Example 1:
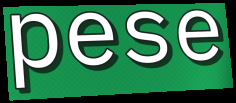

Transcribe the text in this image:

pese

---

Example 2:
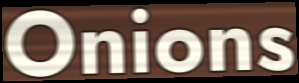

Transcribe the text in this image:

Onions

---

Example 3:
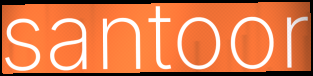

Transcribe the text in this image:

santoor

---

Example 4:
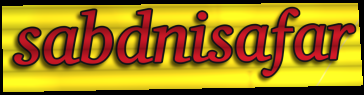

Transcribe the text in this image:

sabdnisafar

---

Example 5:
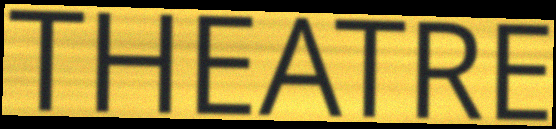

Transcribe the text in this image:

THEATRE